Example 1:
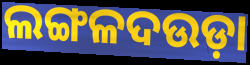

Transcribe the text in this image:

ଲଙ୍ଗଳଦଉଡ଼ା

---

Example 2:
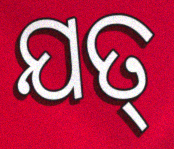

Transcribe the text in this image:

ଯତ୍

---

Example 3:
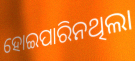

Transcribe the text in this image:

ହୋଇପାରିନଥିଲା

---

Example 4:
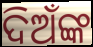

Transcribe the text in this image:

ଦିଅଁଙ୍କ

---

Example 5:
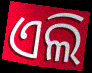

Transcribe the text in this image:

ଏଲି